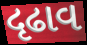
દૃઢાવ